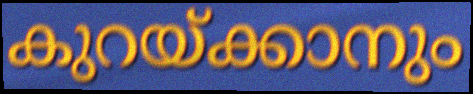
കുറയ്ക്കാനും